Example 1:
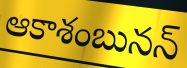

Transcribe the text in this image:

ఆకాశంబునన్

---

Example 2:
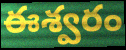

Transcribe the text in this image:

ఈశ్వరం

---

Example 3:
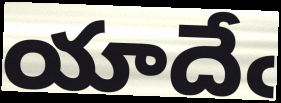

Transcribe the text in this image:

యాదేఁ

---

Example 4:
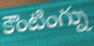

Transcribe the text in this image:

కౌంటింగ్ను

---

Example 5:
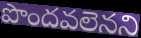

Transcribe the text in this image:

పొందవలెనని